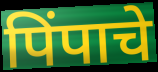
पिंपाचे